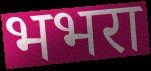
भभरा